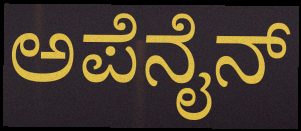
ಅಪೆನೈನ್